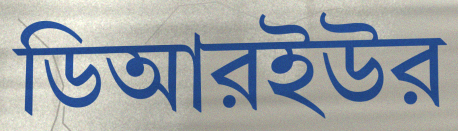
ডিআরইউর